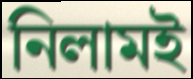
নিলামই